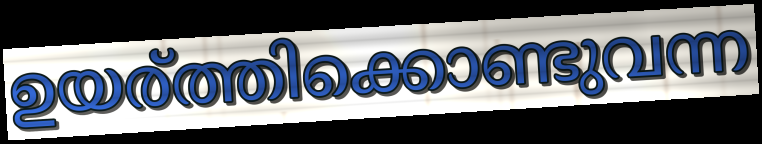
ഉയര്ത്തിക്കൊണ്ടുവന്ന